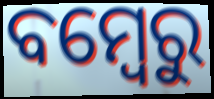
ବମ୍ବେରୁ